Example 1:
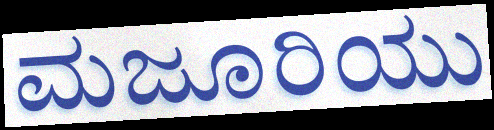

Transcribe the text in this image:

ಮಜೂರಿಯು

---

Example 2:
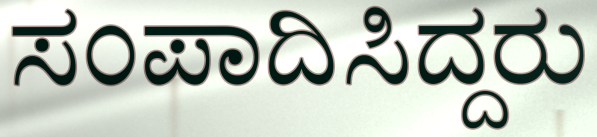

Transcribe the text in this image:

ಸಂಪಾದಿಸಿದ್ದರು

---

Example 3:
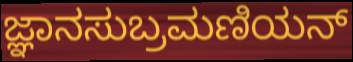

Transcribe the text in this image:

ಜ್ಞಾನಸುಬ್ರಮಣಿಯನ್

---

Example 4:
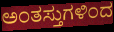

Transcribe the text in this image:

ಅಂತಸ್ತುಗಳಿಂದ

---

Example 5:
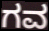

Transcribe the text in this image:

ಗವ